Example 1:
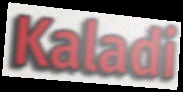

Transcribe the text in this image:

Kaladi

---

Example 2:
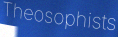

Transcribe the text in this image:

Theosophists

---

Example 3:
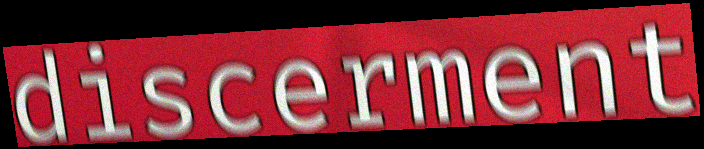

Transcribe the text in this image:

discerment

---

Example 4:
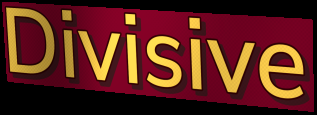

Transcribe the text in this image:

Divisive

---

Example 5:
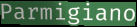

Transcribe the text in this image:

Parmigiano